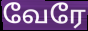
வேரே